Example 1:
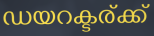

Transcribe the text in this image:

ഡയറക്ടര്ക്ക്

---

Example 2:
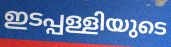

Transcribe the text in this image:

ഇടപ്പള്ളിയുടെ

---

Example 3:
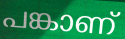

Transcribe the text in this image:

പങ്കാണ്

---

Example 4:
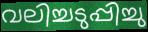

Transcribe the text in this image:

വലിച്ചടുപ്പിച്ചു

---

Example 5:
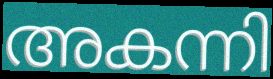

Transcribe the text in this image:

അകന്നി